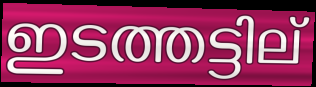
ഇടത്തട്ടില്